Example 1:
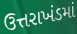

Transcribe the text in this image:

ઉત્તરાખંડમાં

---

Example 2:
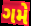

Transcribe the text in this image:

ગમે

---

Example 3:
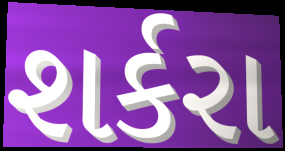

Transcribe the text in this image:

શર્કરા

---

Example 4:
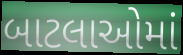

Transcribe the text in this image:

બાટલાઓમાં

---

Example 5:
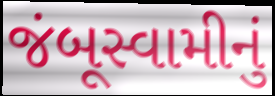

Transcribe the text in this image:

જંબૂસ્વામીનું